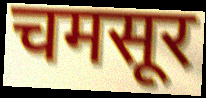
चमसूर